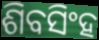
ଶିବସିଂହ